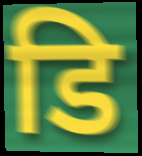
डि